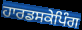
ਹਾਰਡਸਕੇਪਿੰਗ